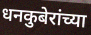
धनकुबेरांच्या